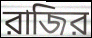
রাজির